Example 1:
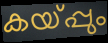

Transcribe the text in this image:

കയ്പ്പും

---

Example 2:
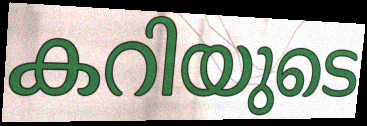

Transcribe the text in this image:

കറിയുടെ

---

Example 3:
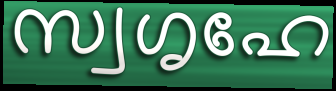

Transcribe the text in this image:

സ്വഗൃഹേ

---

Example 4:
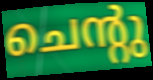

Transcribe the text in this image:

ചെന്റു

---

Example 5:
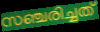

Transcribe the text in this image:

സഞ്ചരിച്ചത്